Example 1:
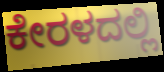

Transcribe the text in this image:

ಕೇರಳದಲ್ಲಿ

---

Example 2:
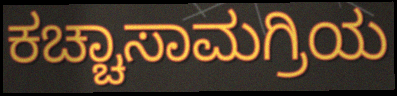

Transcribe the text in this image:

ಕಚ್ಚಾಸಾಮಗ್ರಿಯ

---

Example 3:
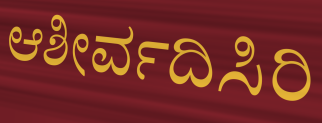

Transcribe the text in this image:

ಆಶೀರ್ವದಿಸಿರಿ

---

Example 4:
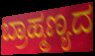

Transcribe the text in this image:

ಬ್ರಾಹ್ಮಣ್ಯದ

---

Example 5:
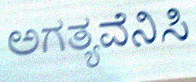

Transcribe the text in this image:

ಅಗತ್ಯವೆನಿಸಿ